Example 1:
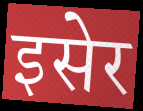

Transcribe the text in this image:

इसेर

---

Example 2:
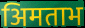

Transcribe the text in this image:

अिमताभ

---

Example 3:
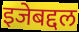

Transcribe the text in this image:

इजेबद्दल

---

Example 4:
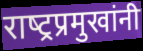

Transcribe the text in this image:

राष्ट्रप्रमुखांनी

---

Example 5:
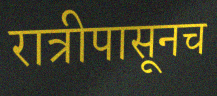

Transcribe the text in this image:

रात्रीपासूनच